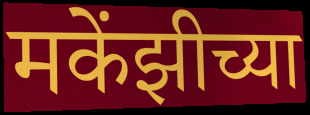
मकेंझीच्या